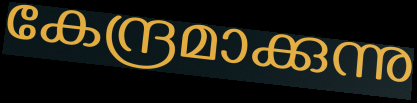
കേന്ദ്രമാക്കുന്നു